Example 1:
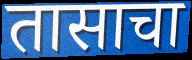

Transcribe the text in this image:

तासाचा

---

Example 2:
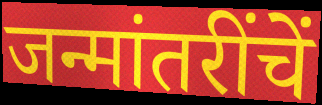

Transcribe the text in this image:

जन्मांतरींचें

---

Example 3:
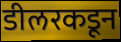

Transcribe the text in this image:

डीलरकडून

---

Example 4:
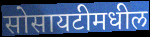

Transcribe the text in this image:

सोसायटीमधील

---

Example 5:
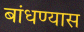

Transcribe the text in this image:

बांधण्यास